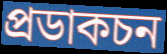
প্ৰডাকচন